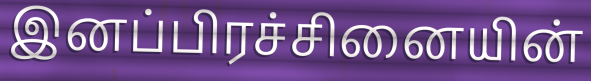
இனப்பிரச்சினையின்